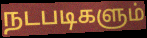
நடபடிகளும்